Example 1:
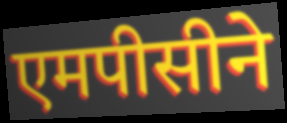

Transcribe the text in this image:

एमपीसीने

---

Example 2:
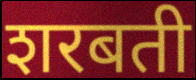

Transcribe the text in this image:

शरबती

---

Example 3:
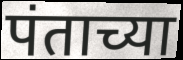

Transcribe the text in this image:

पंताच्या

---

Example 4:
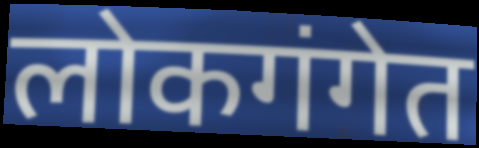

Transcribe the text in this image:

लोकगंगेत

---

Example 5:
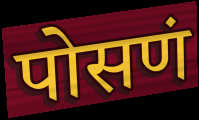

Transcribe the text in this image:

पोसणं